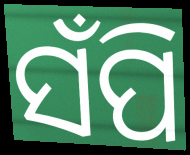
ସଁପି